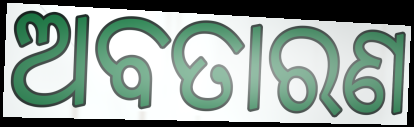
ଅବତାରଣ